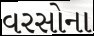
વરસોના